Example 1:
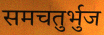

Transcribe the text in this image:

समचतुर्भुज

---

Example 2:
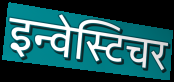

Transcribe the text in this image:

इन्वेस्टिचर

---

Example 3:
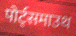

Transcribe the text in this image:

पोर्ट्समाउथ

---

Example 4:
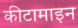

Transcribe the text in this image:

कीटामाइन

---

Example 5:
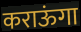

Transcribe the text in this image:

कराऊंगा